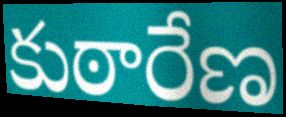
కుఠారేణ